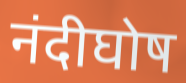
नंदीघोष